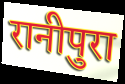
रानीपुरा